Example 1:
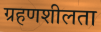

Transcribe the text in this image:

ग्रहणशीलता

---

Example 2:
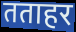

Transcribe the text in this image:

तताहर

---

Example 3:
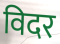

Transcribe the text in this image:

विदर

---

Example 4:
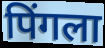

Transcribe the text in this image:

पिंगला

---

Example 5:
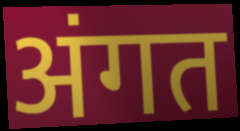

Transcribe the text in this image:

अंगत